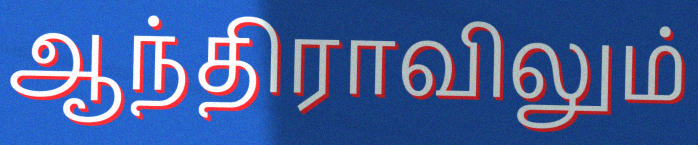
ஆந்திராவிலும்